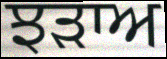
ਝੜਾਅ